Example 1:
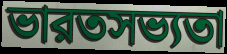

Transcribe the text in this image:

ভারতসভ্যতা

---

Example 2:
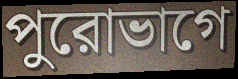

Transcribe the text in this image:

পুরোভাগে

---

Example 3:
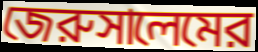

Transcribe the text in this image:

জেরুসালেমের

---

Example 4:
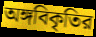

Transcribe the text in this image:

অঙ্গবিকৃতির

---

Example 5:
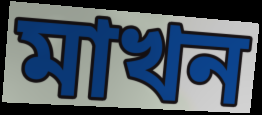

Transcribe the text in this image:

মাখন